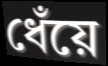
ধেঁয়ে